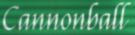
Cannonball